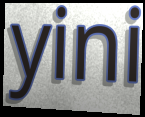
yini